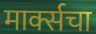
मार्क्सचा